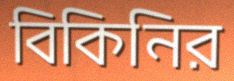
বিকিনির